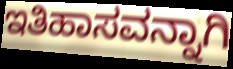
ಇತಿಹಾಸವನ್ನಾಗಿ